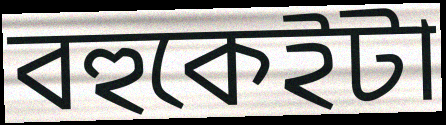
বহুকেইটা